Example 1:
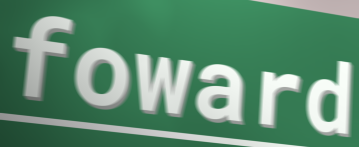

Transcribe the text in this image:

foward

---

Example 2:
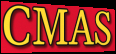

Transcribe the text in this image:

CMAS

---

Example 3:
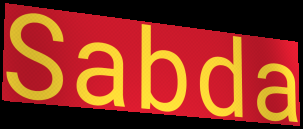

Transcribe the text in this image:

Sabda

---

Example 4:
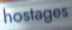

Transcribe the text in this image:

hostages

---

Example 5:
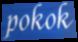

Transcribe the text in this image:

pokok